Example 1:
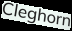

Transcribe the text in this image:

Cleghorn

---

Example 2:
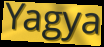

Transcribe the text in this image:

Yagya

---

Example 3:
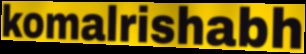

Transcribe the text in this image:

komalrishabh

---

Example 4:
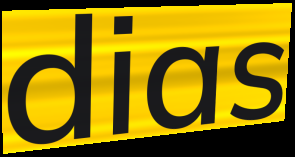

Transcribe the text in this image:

dias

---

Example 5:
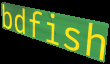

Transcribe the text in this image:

bdfish